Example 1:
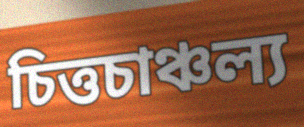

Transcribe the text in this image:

চিত্তচাঞ্চল্য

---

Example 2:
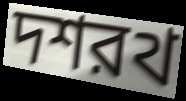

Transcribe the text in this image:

দশরথ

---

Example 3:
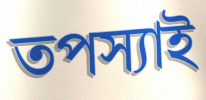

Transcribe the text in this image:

তপস্যাই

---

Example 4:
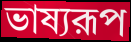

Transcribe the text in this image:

ভাষ্যরূপ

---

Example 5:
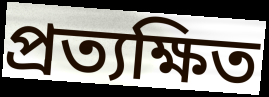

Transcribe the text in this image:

প্রত্যক্ষিত